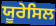
ਯੂਰੇਸਿਲ